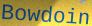
Bowdoin